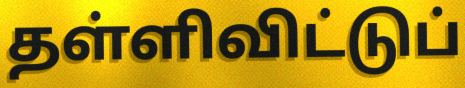
தள்ளிவிட்டுப்